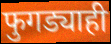
फुगड्याही